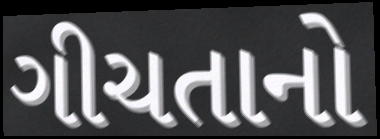
ગીચતાનો